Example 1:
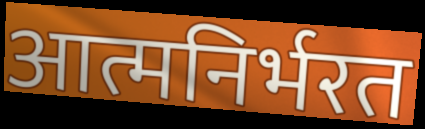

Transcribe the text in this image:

आत्मनिर्भरत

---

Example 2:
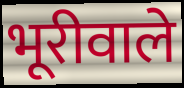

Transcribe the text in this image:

भूरीवाले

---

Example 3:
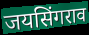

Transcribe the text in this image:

जयसिंगराव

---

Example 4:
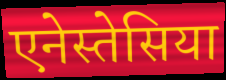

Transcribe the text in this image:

एनेस्तेसिया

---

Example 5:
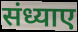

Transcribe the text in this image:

संध्याए